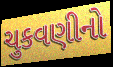
ચુકવણીનો